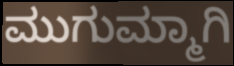
ಮುಗುಮ್ಮಾಗಿ